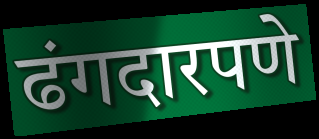
ढंगदारपणे